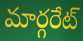
మార్గరేట్